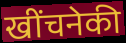
खींचनेकी